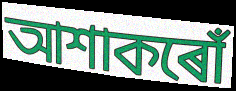
আশাকৰোঁ